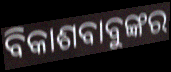
ବିକାଶବାବୁଙ୍କର